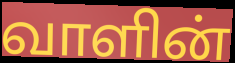
வாளின்